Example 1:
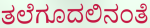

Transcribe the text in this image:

ತಲೆಗೂದಲಿನಂತೆ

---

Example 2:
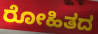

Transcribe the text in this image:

ರೋಹಿತದ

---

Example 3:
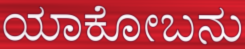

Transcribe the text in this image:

ಯಾಕೋಬನು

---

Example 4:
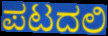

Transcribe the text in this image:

ಪಟದಲಿ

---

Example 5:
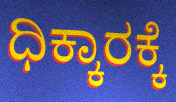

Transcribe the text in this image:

ಧಿಕ್ಕಾರಕ್ಕೆ